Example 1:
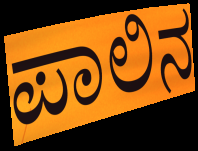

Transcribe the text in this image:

ಪಾಲಿನ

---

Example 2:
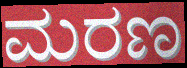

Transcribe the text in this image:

ಮರಣ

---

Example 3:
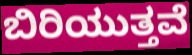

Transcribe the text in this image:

ಬಿರಿಯುತ್ತವೆ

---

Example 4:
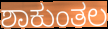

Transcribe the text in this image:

ಶಾಕುಂತಲ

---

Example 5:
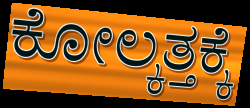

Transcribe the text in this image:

ಕೋಲ್ಕತ್ತಕ್ಕೆ